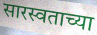
सारस्वताच्या